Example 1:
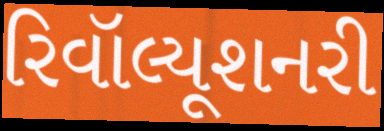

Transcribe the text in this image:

રિવૉલ્યૂશનરી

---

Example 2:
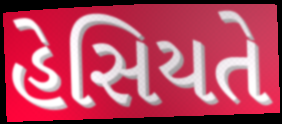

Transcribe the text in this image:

હેસિયતે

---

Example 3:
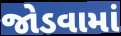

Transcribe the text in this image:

જોડવામાં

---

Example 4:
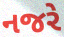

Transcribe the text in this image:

નજરે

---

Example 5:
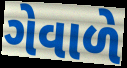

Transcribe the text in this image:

ગેવાળે